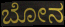
ಬೋನ